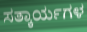
ಸತ್ಕಾರ್ಯಗಳ